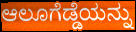
ಆಲೂಗೆಡ್ಡೆಯನ್ನು